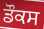
ਡੌਕਸ